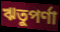
ঋতুপর্ণা